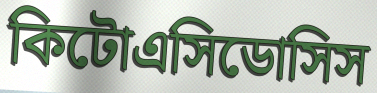
কিটোএসিডোসিস